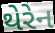
થેરેન